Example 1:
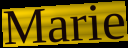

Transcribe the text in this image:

Marie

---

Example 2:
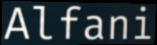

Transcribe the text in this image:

Alfani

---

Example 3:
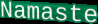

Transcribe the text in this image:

Namaste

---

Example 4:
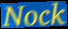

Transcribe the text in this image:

Nock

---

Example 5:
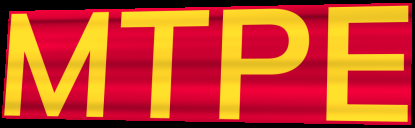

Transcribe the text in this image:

MTPE